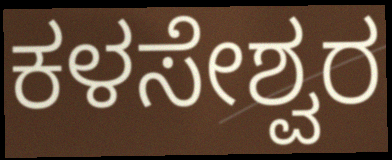
ಕಳಸೇಶ್ವರ